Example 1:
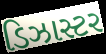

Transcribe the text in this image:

ડિઝાસ્ટર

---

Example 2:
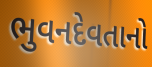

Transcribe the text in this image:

ભુવનદેવતાનો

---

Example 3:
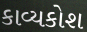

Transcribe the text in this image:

કાવ્યકોશ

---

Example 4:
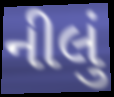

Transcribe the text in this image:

નીલું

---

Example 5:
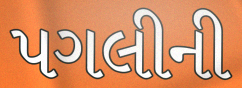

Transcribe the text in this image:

પગલીની